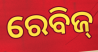
ରେବିଜ୍